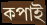
কপাই